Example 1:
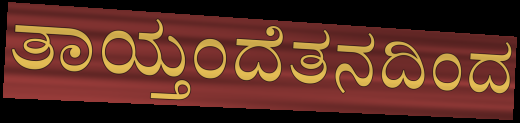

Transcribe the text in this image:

ತಾಯ್ತಂದೆತನದಿಂದ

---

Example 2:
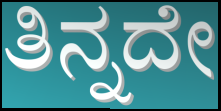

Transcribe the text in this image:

ತಿನ್ನದೇ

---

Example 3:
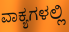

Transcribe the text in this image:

ವಾಕ್ಯಗಳಲ್ಲಿ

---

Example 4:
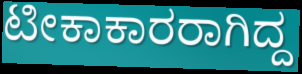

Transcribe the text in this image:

ಟೀಕಾಕಾರರಾಗಿದ್ದ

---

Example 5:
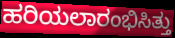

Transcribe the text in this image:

ಹರಿಯಲಾರಂಭಿಸಿತ್ತು